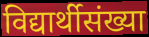
विद्यार्थीसंख्या